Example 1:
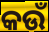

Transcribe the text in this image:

କଉଁ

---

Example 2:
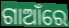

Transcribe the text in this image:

ଗାଆଁରେ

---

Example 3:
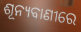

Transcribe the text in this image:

ଶୂନ୍ୟବାଣୀରେ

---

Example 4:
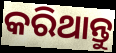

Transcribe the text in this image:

କରିଥାନ୍ତୁ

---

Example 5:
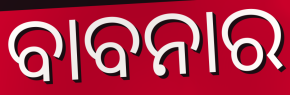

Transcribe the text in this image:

ବାବନାର